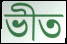
ভীত